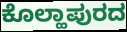
ಕೊಲ್ಹಾಪುರದ